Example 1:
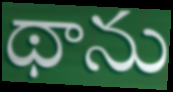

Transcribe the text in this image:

థాను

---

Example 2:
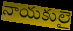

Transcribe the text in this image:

నాయకులై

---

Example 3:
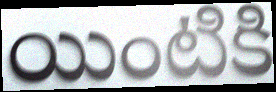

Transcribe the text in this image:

యింటికి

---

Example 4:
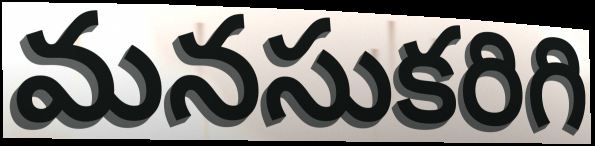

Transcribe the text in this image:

మనసుకరిగి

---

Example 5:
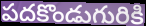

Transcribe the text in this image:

పదకొండుగురికి